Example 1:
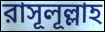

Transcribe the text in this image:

রাসূলূল্লাহ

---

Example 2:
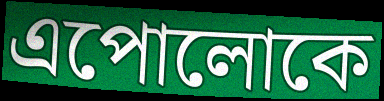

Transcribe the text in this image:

এপোলোকে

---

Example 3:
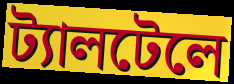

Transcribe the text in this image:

ট্যালটেলে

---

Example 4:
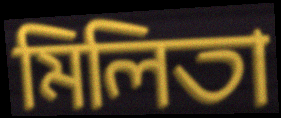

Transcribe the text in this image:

মিলিতা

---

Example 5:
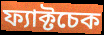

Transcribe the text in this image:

ফ্যাক্টচেক